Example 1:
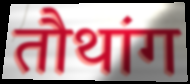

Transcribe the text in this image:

तौथांग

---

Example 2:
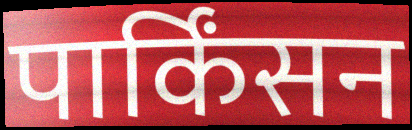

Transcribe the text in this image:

पार्किंसन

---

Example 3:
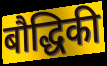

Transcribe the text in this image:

बौद्धिकी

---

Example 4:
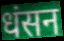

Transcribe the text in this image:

धंसन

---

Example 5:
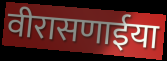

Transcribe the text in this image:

वीरासणाईया